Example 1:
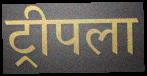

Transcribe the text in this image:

ट्रीपला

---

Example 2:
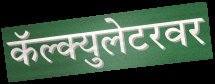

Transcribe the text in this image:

कॅल्क्युलेटरवर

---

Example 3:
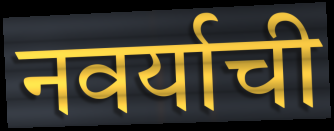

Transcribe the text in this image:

नवर्याची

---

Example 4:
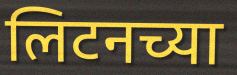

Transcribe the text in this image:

लिटनच्या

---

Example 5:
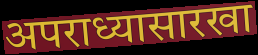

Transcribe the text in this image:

अपराध्यासारखा